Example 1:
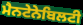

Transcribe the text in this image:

ਮੈਨਟੇਨੇਬਿਲਟੀ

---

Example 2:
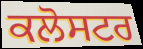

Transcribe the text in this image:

ਕਲੋਸਟਰ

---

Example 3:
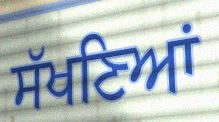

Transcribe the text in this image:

ਸੱਖਣਿਆਂ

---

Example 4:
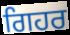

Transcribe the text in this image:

ਗਿਹਰ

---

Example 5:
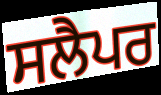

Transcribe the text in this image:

ਸਲੈਪਰ